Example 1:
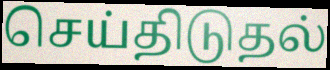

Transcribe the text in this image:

செய்திடுதல்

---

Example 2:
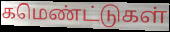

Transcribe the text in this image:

கமெண்ட்டுகள்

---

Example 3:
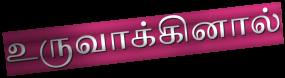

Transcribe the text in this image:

உருவாக்கினால்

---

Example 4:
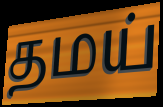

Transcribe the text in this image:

தமய்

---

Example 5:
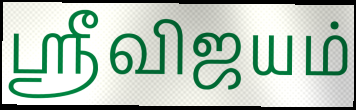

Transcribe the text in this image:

ஸ்ரீவிஜயம்